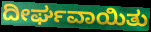
ದೀರ್ಘವಾಯಿತು